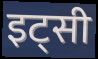
इट्सी